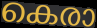
കെരാ